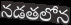
నడతలోన